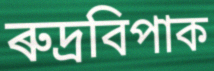
ৰুদ্ৰবিপাক